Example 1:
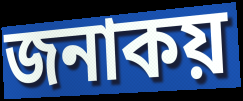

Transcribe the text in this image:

জনাকয়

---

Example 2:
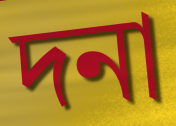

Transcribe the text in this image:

দনা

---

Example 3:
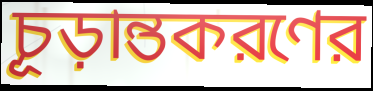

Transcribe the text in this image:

চূড়ান্তকরণের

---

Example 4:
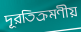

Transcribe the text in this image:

দূরতিক্রমণীয়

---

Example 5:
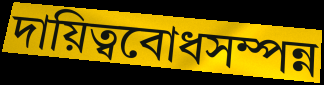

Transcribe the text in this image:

দায়িত্ববোধসম্পন্ন